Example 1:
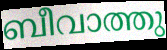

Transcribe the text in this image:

ബീവാത്തു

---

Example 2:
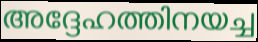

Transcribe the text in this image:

അദ്ദേഹത്തിനയച്ച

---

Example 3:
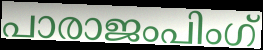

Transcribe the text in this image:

പാരാജംപിംഗ്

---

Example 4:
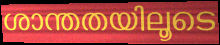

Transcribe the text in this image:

ശാന്തതയിലൂടെ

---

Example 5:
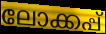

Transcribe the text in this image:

ലോക്കപ്പ്